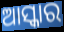
ଆସ୍କାର